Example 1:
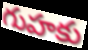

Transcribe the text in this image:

గుహకు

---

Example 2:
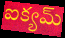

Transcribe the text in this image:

ఐక్యమ్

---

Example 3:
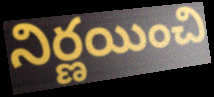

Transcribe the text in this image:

నిర్ణయించి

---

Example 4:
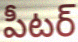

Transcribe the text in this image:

పీటర్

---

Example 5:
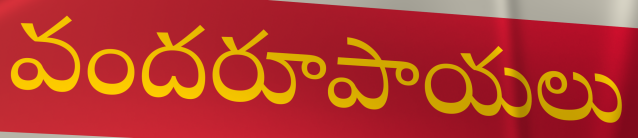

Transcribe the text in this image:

వందరూపాయలు